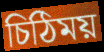
চিঠিময়